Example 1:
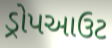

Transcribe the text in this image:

ડ્રોપઆઉટ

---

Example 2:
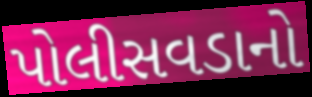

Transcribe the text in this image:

પોલીસવડાનો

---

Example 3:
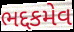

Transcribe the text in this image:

ભદ્દકમેવ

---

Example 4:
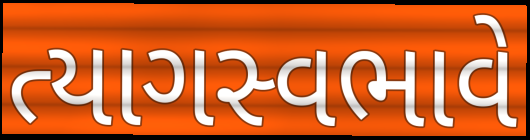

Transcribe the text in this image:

ત્યાગસ્વભાવે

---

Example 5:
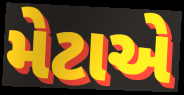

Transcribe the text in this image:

મેટાએ